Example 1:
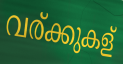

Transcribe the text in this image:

വര്ക്കുകള്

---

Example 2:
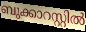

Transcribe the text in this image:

ബുക്കാറസ്റ്റിൽ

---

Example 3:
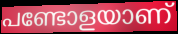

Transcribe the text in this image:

പണ്ടോളയാണ്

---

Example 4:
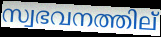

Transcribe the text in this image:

സ്വഭവനത്തില്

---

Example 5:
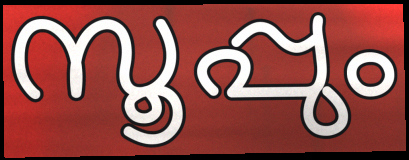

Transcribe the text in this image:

സൂപ്പും